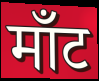
माँट